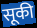
सूकी